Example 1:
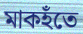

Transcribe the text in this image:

মাকহঁতে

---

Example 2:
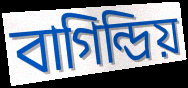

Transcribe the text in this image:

বাগিন্দ্ৰিয়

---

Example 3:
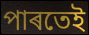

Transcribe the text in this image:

পাৰতেই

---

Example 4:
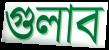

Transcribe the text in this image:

গুলাব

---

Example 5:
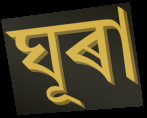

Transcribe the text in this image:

ঘূৰা